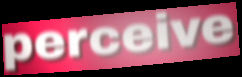
perceive